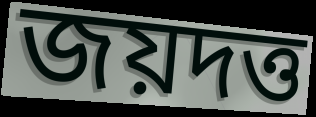
জয়দত্ত